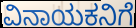
ವಿನಾಯಕನಿಗೆ